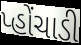
પ્હોંચાડી